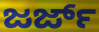
ಜರ್ಜ್